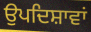
ਉਪਦਿਸ਼ਾਵਾਂ